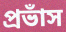
প্রভাঁস